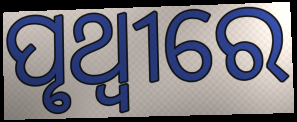
ପୃଥ୍ୱୀରେ